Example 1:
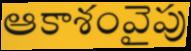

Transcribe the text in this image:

ఆకాశంవైపు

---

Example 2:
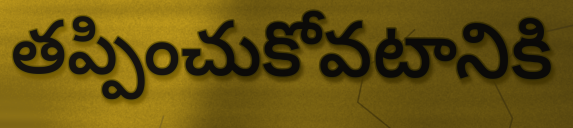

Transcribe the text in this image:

తప్పించుకోవటానికి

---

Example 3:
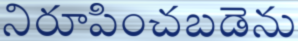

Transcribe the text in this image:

నిరూపించబడెను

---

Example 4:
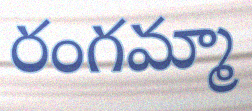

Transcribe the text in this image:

రంగమ్మా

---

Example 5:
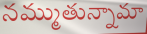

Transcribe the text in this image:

నమ్ముతున్నామా